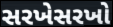
સરખેસરખો